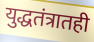
युद्धतंत्रातही